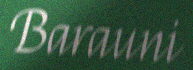
Barauni